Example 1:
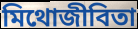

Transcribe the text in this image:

মিথোজীবিতা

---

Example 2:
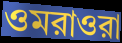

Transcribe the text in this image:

ওমরাওরা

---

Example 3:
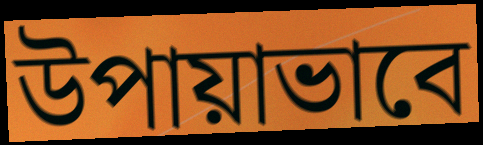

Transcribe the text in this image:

উপায়াভাবে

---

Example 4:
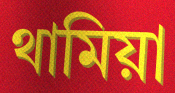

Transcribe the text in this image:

থামিয়া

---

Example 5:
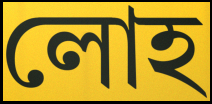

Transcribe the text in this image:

লোহ